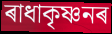
ৰাধাকৃষ্ণনৰ